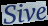
Sive